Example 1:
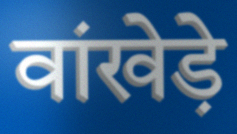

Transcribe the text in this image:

वांखेड़े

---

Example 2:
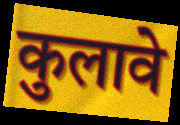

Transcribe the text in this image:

कुलावे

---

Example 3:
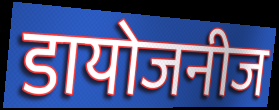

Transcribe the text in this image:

डायोजनीज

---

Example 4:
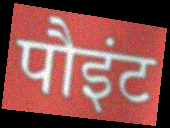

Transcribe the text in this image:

पौइंट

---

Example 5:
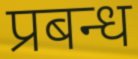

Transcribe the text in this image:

प्रबन्ध